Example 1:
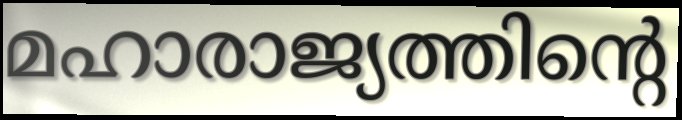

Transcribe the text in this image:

മഹാരാജ്യത്തിന്റെ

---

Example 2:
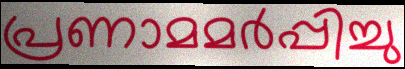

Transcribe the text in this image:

പ്രണാമമർപ്പിച്ചു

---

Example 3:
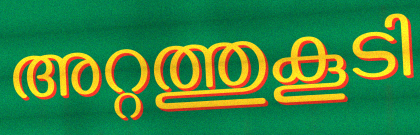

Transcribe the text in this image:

അറ്റത്തുകൂടി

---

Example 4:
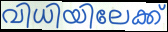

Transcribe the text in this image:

വിധിയിലേക്ക്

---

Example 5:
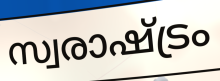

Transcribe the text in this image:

സ്വരാഷ്ട്രം